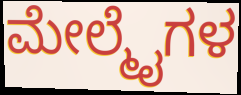
ಮೇಲ್ಮೈಗಳ